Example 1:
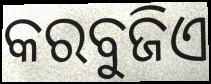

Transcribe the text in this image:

କରବୁଜିଏ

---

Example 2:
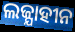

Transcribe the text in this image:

ଲଜ୍ଯାହୀନ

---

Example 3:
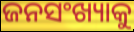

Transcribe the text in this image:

ଜନସଂଖ୍ୟାକୁ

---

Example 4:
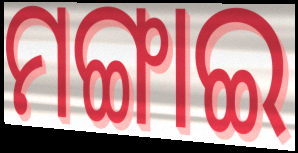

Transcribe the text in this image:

ମଙ୍ଗାଇ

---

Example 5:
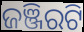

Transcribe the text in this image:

ଜଞ୍ଜିରଟି